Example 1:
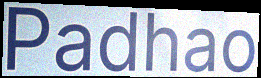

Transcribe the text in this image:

Padhao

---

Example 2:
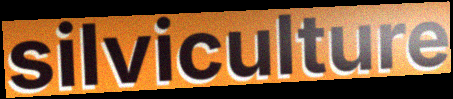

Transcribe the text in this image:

silviculture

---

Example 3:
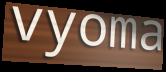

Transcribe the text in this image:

vyoma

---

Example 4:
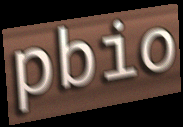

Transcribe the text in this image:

pbio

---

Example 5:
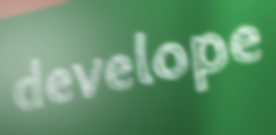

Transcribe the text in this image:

develope